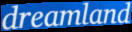
dreamland